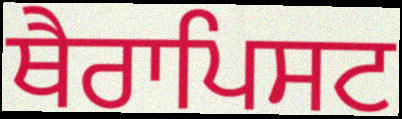
ਥੈਰਾਪਿਸਟ